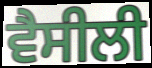
ਵੈਸੀਲੀ